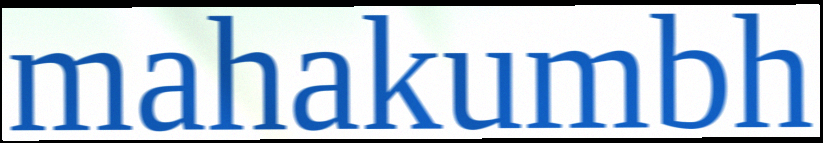
mahakumbh